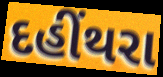
દહીંથરા